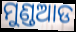
ମୁଣ୍ଡଆଡ